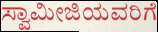
ಸ್ವಾಮೀಜಿಯವರಿಗೆ